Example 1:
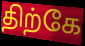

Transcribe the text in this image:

திற்கே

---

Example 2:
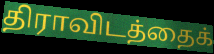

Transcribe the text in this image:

திராவிடத்தைக்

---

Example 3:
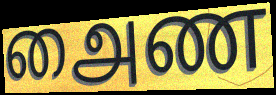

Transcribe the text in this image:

அைண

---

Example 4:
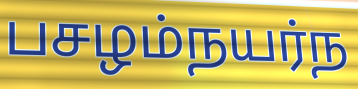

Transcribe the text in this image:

பசழம்நயர்ந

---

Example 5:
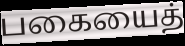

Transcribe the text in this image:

பகையைத்